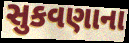
સુકવણાના